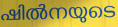
ഷിൽനയുടെ